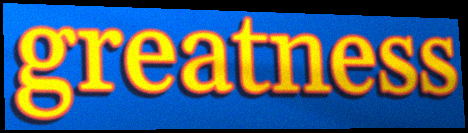
greatness